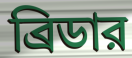
ব্রিডার